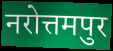
नरोत्तमपुर